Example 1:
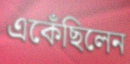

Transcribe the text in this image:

একেঁছিলেন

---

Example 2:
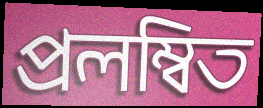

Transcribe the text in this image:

প্রলম্বিত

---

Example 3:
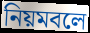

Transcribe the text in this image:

নিয়মবলে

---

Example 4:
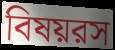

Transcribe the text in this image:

বিষয়রস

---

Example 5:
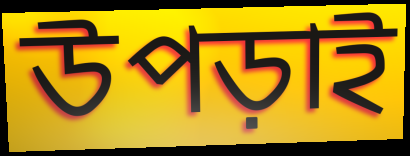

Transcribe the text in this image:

উপড়াই